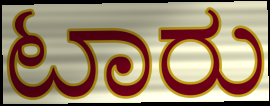
ಟಾರು